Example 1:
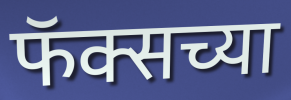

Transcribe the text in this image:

फॅक्सच्या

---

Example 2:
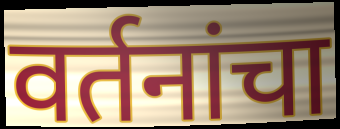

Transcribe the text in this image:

वर्तनांचा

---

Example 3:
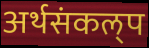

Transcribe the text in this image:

अर्थसंकल्प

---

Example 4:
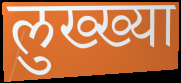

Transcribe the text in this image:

लुख्ख्या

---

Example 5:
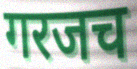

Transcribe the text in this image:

गरजच